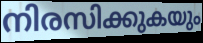
നിരസിക്കുകയും